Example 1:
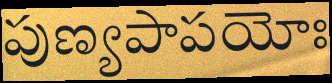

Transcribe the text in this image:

పుణ్యపాపయోః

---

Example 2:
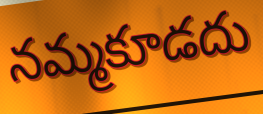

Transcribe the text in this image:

నమ్మకూడదు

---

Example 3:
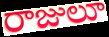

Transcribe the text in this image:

రాజులూ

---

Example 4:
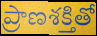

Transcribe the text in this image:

ప్రాణశక్తితో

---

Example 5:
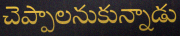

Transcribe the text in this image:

చెప్పాలనుకున్నాడు